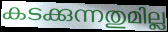
കടക്കുന്നതുമില്ല